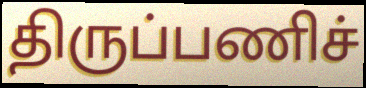
திருப்பணிச்